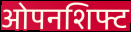
ओपनशिफ्ट